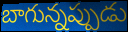
బాగున్నప్పుడు